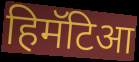
हिमॅटिआ